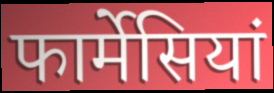
फार्मेसियां